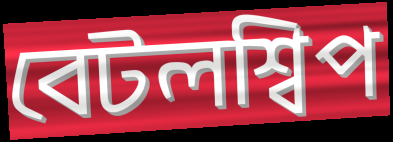
বেটলশ্বিপ